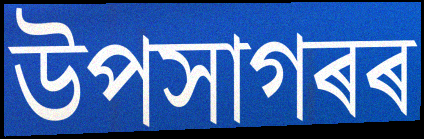
উপসাগৰৰ